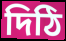
দিঠি